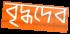
বৃদ্ধদেব